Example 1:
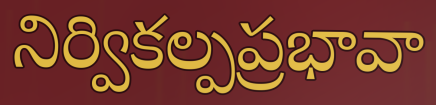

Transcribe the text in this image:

నిర్వికల్పప్రభావా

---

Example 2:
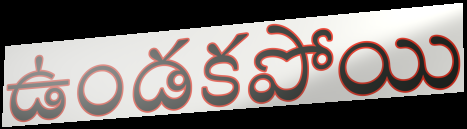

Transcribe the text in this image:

ఉండకపోయి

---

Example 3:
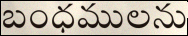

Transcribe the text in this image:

బంధములను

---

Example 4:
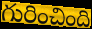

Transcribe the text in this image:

గురించింది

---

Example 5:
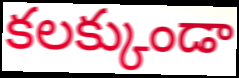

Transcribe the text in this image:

కలక్కుండా